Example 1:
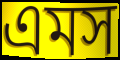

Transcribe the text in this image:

এমস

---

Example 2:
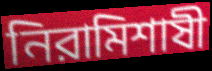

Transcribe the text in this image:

নিরামিশাষী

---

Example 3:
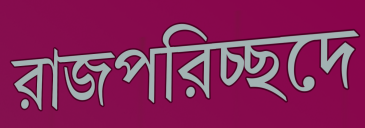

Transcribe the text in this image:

রাজপরিচ্ছদে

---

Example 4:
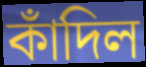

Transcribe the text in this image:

কাঁদিল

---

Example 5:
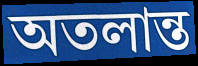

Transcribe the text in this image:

অতলান্ত